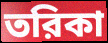
তরিকা